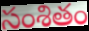
సంశితం